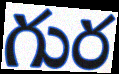
గుర